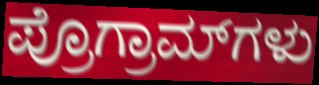
ಪ್ರೊಗ್ರಾಮ್‌ಗಳು